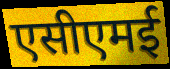
एसीएमई